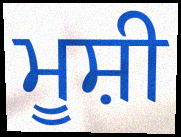
ਮੂਸ਼ੀ